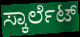
ಸ್ಕಾರ್ಲೆಟ್